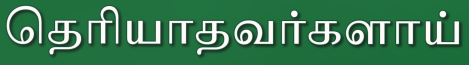
தெரியாதவர்களாய்